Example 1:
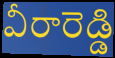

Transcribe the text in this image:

వీరారెడ్డి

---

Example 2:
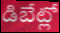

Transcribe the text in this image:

డిబేట్లో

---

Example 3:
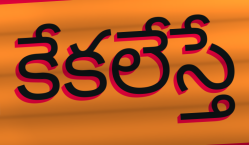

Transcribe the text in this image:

కేకలేస్తే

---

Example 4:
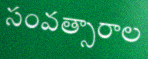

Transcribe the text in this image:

సంవత్సారాల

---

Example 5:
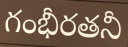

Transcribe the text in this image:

గంభీరతనీ